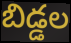
బిడ్డల